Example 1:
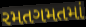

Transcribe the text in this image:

રમતગમતમાં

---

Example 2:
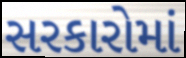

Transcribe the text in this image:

સરકારોમાં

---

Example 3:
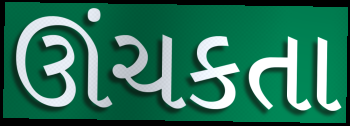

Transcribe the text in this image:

ઊંચકતા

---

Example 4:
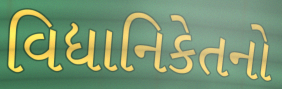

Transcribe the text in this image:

વિદ્યાનિકેતનો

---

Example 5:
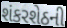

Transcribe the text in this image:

શંકરશેઠની